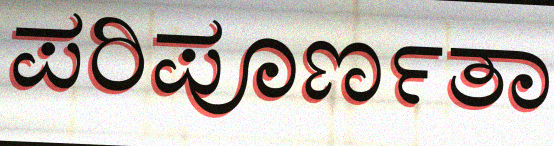
ಪರಿಪೂರ್ಣತಾ